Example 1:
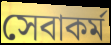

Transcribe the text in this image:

সেবাকর্ম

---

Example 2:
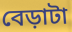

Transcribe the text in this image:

বেড়াটা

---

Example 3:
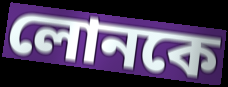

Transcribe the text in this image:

লোনকে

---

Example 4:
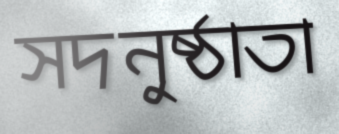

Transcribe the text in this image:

সদনুষ্ঠাতা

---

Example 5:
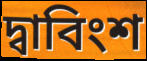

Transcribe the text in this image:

দ্বাবিংশ